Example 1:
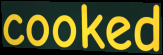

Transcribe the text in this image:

cooked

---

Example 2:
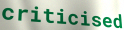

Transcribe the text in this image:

criticised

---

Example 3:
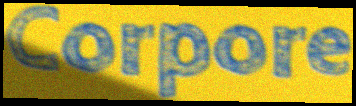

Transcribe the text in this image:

Corpore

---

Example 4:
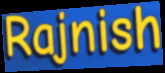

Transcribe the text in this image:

Rajnish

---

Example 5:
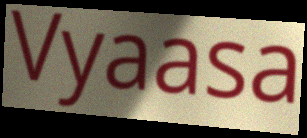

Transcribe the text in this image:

Vyaasa